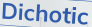
Dichotic